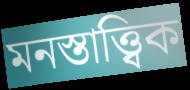
মনস্তাত্ত্বিক